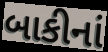
બાકીનાં